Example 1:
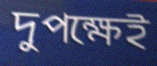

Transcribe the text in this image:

দুপক্ষেই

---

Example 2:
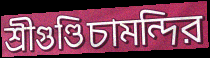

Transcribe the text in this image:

শ্রীগুণ্ডিচামন্দির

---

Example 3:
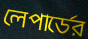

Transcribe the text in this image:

লেপার্ডের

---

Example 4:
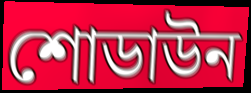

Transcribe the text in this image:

শোডাউন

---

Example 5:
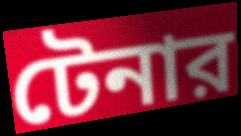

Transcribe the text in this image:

টেনার